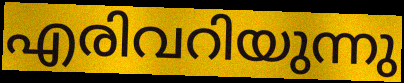
എരിവറിയുന്നു